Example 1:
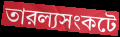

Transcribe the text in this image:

তারল্যসংকটে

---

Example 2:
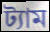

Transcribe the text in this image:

ট্যাম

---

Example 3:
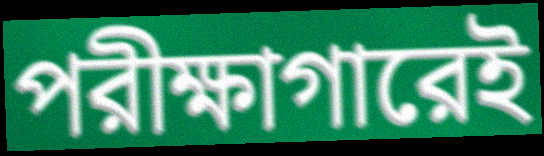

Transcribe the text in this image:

পরীক্ষাগারেই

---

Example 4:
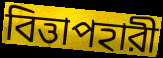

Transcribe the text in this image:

বিত্তাপহারী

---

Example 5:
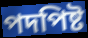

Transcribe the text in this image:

পদপিষ্ট